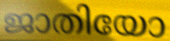
ജാതിയോ